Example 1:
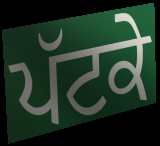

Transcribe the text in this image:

ਪੱਟਕੇ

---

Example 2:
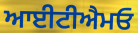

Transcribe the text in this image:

ਆਈਟੀਐਮਓ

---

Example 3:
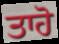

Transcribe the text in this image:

ਤਾਹੋ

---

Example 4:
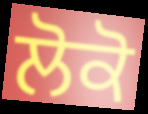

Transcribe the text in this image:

ਲੋਕੋ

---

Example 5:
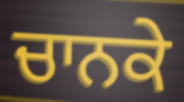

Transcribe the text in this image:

ਚਾਨਕੇ